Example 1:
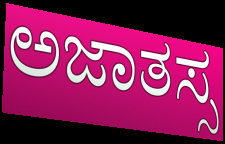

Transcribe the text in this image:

ಅಜಾತಸ್ಸ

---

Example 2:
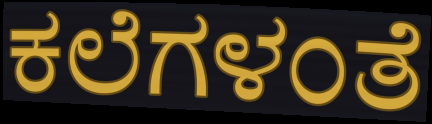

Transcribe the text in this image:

ಕಲೆಗಳಂತೆ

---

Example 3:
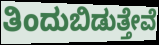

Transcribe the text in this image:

ತಿಂದುಬಿಡುತ್ತೇವೆ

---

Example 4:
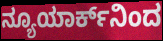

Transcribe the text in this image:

ನ್ಯೂಯಾರ್ಕ್‌ನಿಂದ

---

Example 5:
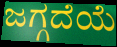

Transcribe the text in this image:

ಜಗ್ಗದೆಯೆ